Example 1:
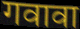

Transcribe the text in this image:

गवावा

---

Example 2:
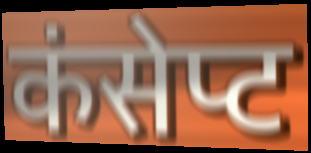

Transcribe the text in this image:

कंसेप्ट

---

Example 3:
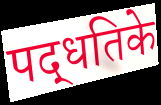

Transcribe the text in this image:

पद्धतिके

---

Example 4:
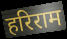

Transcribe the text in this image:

हरिराम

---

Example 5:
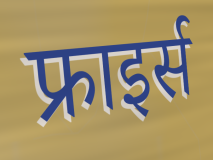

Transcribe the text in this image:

फ्राइर्स